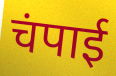
चंपाई